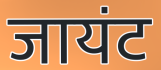
जायंट